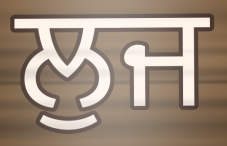
ਲੁਜ